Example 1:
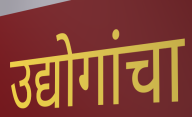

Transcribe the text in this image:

उद्योगांचा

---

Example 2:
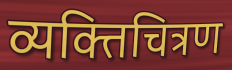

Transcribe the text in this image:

व्यक्तिचित्रण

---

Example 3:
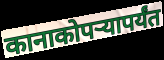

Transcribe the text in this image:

कानाकोपऱ्यापर्यंत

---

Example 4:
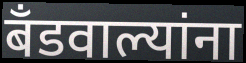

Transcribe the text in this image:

बँडवाल्यांना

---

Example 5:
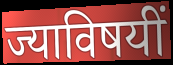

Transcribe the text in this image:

ज्याविषयीं